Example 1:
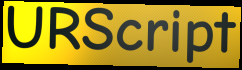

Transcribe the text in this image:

URScript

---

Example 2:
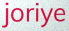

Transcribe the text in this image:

joriye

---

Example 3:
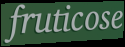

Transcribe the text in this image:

fruticose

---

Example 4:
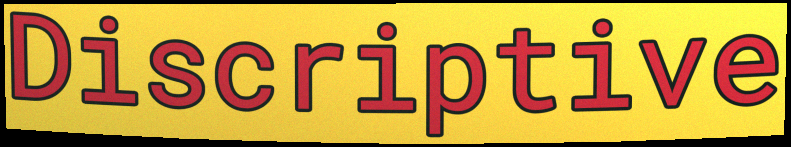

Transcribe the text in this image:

Discriptive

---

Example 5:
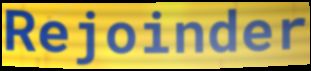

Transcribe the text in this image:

Rejoinder